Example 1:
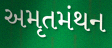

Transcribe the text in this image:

અમૃતમંથન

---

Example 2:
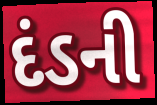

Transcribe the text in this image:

દંડની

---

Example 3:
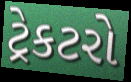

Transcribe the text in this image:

ટ્રેકટરો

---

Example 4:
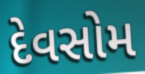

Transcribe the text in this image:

દેવસોમ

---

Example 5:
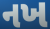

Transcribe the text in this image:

નખ